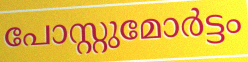
പോസ്റ്റുമോർട്ടം